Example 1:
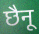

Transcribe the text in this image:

छैनू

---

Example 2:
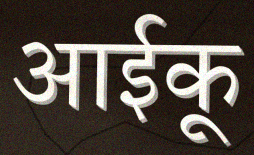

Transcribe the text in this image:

आईकू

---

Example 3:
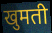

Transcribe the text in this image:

खुमती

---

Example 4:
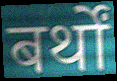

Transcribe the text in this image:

बर्थों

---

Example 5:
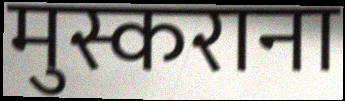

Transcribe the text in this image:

मुस्कराना